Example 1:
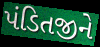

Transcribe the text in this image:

પંડિતજીને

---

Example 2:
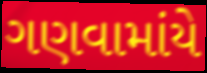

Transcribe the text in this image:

ગણવામાંયે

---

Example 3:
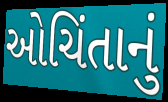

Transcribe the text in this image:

ઓચિંતાનું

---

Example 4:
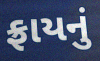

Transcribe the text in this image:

ફ્રાયનું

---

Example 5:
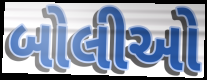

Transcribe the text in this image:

બોલીઓ